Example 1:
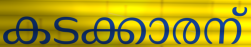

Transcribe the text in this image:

കടക്കാരന്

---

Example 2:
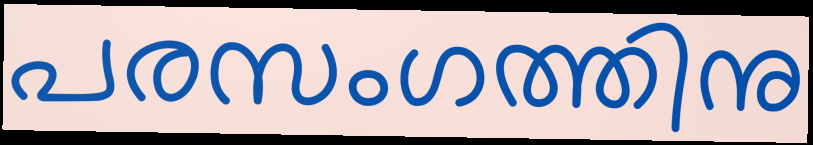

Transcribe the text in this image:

പരസംഗത്തിനു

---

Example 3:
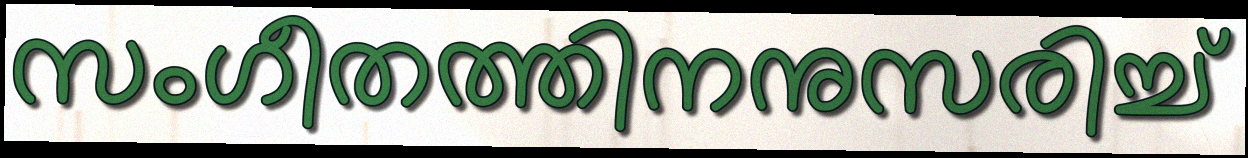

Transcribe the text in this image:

സംഗീതത്തിനനുസരിച്ച്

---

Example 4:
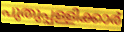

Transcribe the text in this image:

പുതുപ്പള്ളിക്കാർ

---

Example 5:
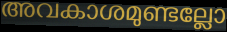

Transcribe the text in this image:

അവകാശമുണ്ടല്ലോ